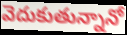
వెదుకుతున్నానో